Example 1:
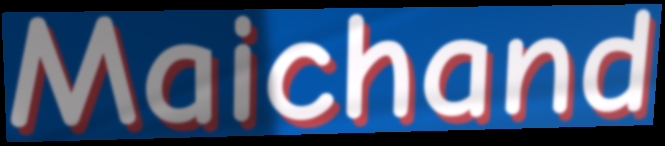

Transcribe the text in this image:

Maichand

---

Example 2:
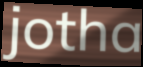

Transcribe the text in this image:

jotha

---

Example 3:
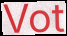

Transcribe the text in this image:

Vot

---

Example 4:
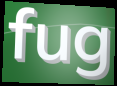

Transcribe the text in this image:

fug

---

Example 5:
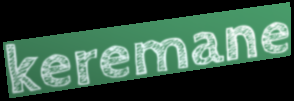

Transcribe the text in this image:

keremane